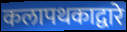
कलापथकाद्वारे